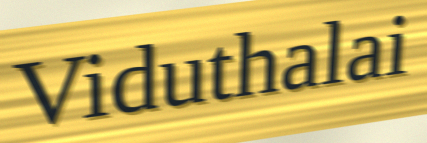
Viduthalai